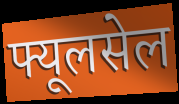
फ्यूलसेल